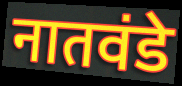
नातवंडे